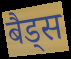
बैड्स